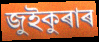
জুইকুৰাৰ